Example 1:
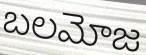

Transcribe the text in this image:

బలమోజ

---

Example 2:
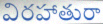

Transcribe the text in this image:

విరహాతురా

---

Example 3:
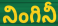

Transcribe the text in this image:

నింగినీ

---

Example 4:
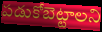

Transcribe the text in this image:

పడుకోబెట్టాలని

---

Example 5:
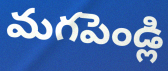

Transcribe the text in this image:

మగపెండ్లి